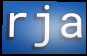
rja